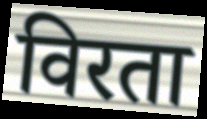
विरता